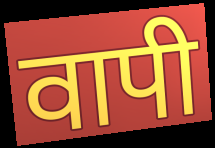
वापी